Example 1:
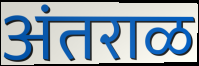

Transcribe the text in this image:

अंतराळ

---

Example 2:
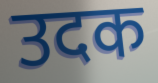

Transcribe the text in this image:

उदक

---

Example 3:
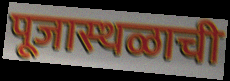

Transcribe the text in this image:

पूजास्थळाची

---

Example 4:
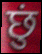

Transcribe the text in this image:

छुं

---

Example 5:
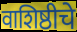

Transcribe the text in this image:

वाशिष्ठीचे